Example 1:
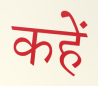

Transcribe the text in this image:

कहें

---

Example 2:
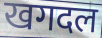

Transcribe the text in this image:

खगदल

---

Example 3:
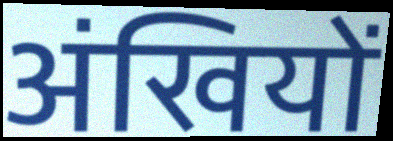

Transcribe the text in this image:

अंखियों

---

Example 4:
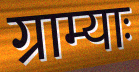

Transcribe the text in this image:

ग्राम्याः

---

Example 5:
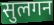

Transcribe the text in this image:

सुलगन